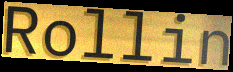
Rollin